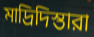
মাদ্রিদিস্তারা